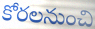
కోరలనుంచి